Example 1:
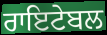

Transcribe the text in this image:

ਰਾਇਟੇਬਲ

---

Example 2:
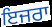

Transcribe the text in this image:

ਇਜਰਾ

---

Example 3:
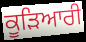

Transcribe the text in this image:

ਕੂੜਿਆਰੀ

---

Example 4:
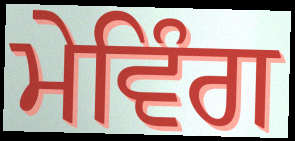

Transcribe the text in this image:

ਮੇਵਿੰਗ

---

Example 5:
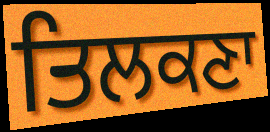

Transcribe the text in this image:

ਤਿਲਕਣਾ